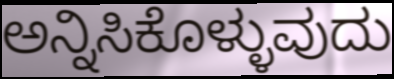
ಅನ್ನಿಸಿಕೊಳ್ಳುವುದು